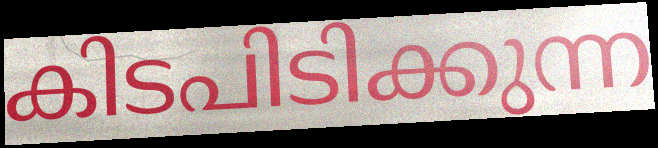
കിടപിടിക്കുന്ന